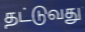
தட்டுவது